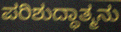
ಪರಿಶುದ್ಧಾತ್ಮನು